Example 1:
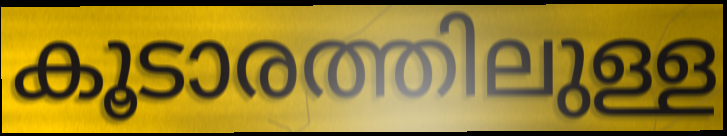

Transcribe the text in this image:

കൂടാരത്തിലുള്ള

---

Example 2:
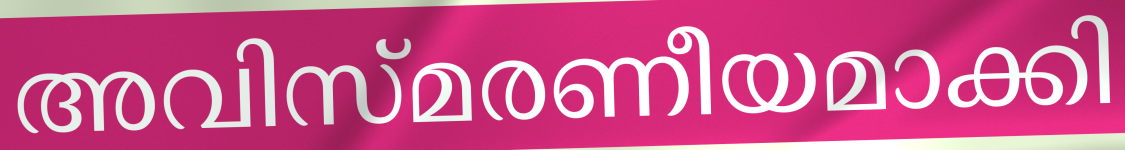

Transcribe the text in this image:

അവിസ്മരണീയമാക്കി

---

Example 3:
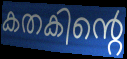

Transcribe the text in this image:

കതകിന്റെ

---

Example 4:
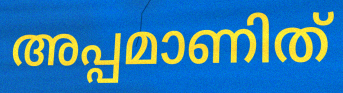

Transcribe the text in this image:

അപ്പമാണിത്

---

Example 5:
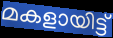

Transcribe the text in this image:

മകളായിട്ട്